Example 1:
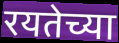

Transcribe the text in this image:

रयतेच्या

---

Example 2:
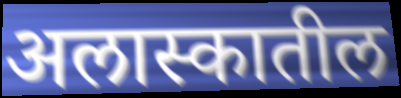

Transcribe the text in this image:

अलास्कातील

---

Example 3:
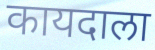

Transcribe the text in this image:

कायदाला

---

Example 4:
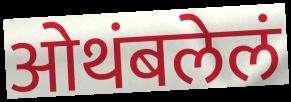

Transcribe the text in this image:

ओथंबलेलं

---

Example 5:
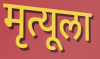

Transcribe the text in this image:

मृत्यूला